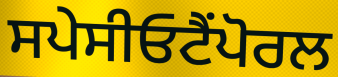
ਸਪੇਸੀਓਟੈਂਪੋਰਲ